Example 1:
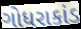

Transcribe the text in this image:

ગોધરાકાંડ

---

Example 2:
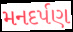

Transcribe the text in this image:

મનદર્પણ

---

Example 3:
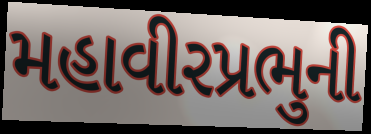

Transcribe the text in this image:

મહાવીરપ્રભુની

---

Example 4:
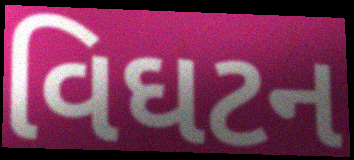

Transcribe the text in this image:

વિઘટન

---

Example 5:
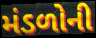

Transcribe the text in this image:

મંડળોની